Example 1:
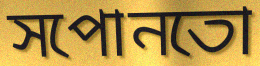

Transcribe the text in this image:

সপোনতো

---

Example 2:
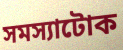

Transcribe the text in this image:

সমস্যাটোক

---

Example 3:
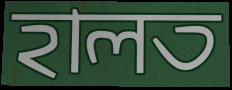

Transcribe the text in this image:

হালত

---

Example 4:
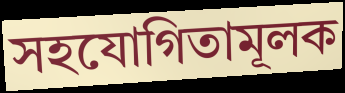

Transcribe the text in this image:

সহযোগিতামূলক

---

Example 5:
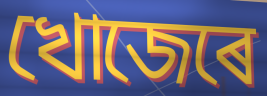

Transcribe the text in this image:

খোজেৰে